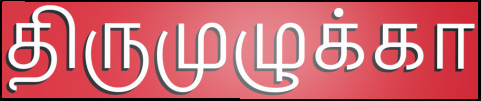
திருமுழுக்கா